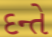
દન્તે